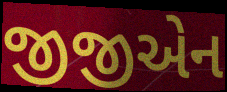
જીજીએન